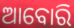
ଆବୋରି